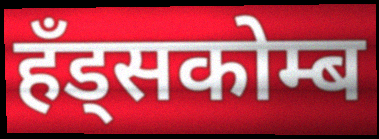
हँड्सकोम्ब